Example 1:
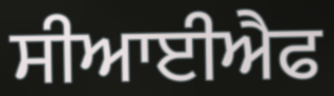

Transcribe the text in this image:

ਸੀਆਈਐਫ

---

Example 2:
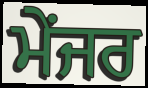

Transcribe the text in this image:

ਮੇਂਜਰ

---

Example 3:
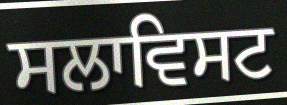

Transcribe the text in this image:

ਸਲਾਵਿਸਟ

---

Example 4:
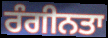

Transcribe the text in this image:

ਰੰਗੀਨਤਾ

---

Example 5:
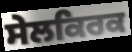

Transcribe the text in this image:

ਸੇਲਕਿਰਕ